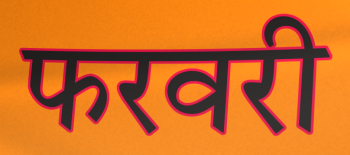
फरवरी